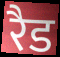
रैड